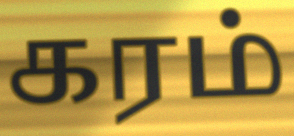
கரம்